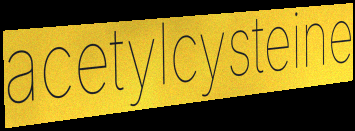
acetylcysteine